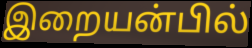
இறையன்பில்